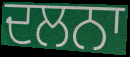
ਦਲਨਾ